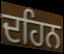
ਦਹਿਨ